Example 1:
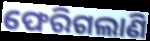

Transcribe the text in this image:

ଫେରିଗଲାଣି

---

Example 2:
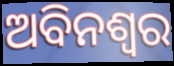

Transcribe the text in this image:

ଅବିନଶ୍ଵର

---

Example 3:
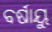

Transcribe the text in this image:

ବର୍ଷାୟୁ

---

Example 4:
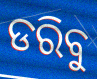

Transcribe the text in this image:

ଡରିବୁ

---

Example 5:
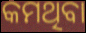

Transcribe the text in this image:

କମଥିବା